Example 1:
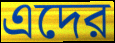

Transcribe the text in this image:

এদের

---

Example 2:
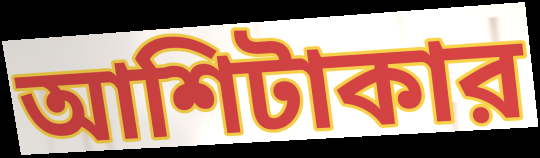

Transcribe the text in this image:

আশিটাকার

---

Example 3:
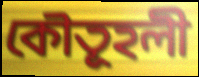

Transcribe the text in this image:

কৌতূহলী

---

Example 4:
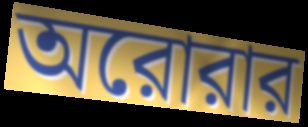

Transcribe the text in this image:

অরোরার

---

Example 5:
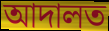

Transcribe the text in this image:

আদালত